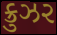
ક્રુઝર